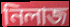
নিলাজ